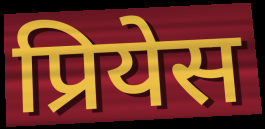
प्रियेस